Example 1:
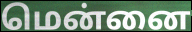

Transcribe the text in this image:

மென்னை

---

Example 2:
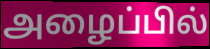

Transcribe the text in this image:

அழைப்பில்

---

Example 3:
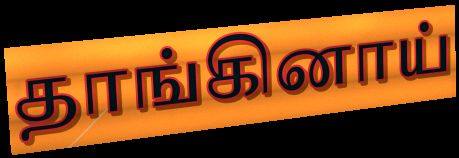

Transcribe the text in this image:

தாங்கினாய்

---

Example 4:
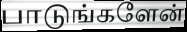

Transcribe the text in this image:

பாடுங்களேன்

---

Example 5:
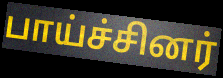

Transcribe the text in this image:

பாய்ச்சினர்